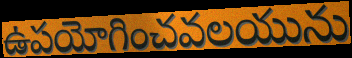
ఉపయోగించవలయును